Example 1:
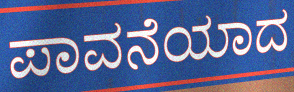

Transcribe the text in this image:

ಪಾವನೆಯಾದ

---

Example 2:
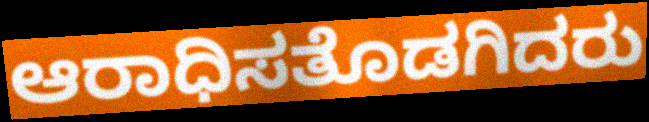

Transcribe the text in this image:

ಆರಾಧಿಸತೊಡಗಿದರು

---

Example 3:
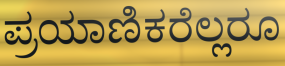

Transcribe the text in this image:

ಪ್ರಯಾಣಿಕರೆಲ್ಲರೂ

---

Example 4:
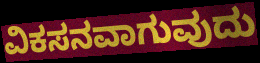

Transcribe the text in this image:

ವಿಕಸನವಾಗುವುದು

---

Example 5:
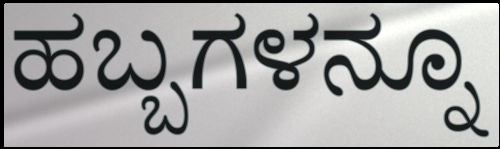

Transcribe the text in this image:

ಹಬ್ಬಗಳನ್ನೂ